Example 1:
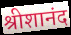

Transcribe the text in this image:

श्रीशानंद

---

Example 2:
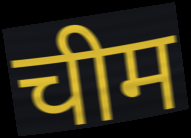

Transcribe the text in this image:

चीम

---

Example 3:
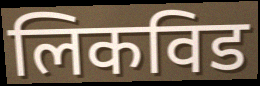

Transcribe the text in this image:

लिकविड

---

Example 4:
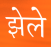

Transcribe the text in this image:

झेले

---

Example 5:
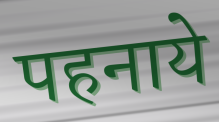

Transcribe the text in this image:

पहनाये